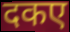
दकए